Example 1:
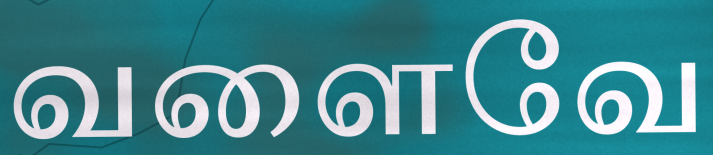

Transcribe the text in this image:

வளைவே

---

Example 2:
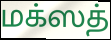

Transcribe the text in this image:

மக்ஸத்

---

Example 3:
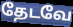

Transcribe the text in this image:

தேடவே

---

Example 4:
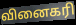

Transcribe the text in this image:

வினைகரி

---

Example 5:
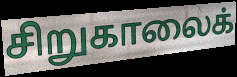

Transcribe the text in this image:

சிறுகாலைக்